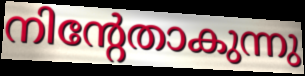
നിന്റേതാകുന്നു